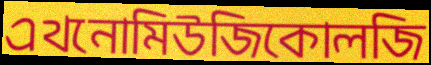
এথনোমিউজিকোলজি